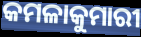
କମଳାକୁମାରୀ